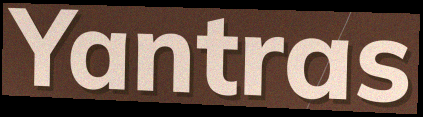
Yantras